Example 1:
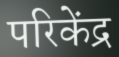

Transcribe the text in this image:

परिकेंद्र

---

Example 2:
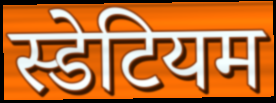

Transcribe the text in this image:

स्डेटियम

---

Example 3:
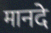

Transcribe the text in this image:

मानदे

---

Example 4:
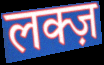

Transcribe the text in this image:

लक्ज़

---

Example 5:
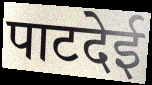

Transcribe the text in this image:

पाटदेई